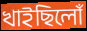
খাইছিলোঁ